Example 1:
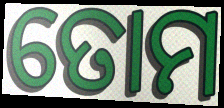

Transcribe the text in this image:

ତୋମ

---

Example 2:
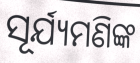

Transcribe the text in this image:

ସୂର୍ଯ୍ୟମଣିଙ୍କ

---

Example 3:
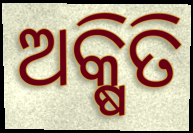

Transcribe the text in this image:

ଅକ୍ଷିତି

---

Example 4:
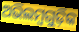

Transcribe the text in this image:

ଅଭିଲମ୍ବଗୁଡ଼ିକ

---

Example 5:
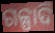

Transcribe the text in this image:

ଗଳ୍ପାଦି